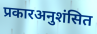
प्रकारअनुशंसित